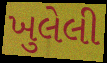
ખુલેલી